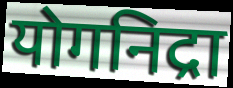
योगनिद्रा